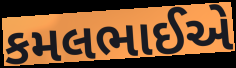
કમલભાઈએ